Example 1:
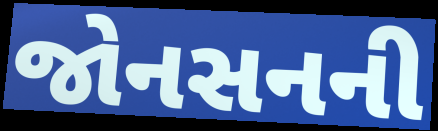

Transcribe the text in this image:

જોનસનની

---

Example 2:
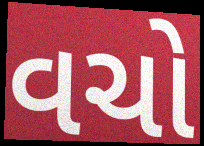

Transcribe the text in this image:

વચો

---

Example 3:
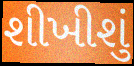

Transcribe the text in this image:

શીખીશું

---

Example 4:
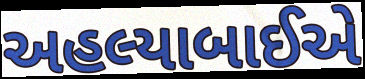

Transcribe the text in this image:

અહલ્યાબાઈએ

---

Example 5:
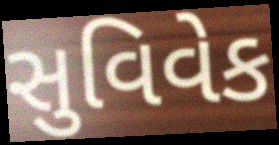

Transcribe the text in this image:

સુવિવેક